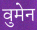
वुमेन